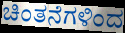
ಚಿಂತನೆಗಳಿಂದ